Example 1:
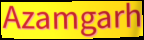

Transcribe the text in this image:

Azamgarh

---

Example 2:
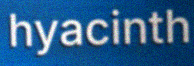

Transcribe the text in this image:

hyacinth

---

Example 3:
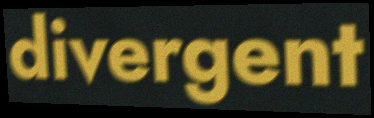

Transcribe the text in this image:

divergent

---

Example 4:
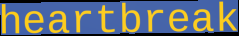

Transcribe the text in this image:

heartbreak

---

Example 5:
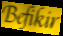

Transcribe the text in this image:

Befikir